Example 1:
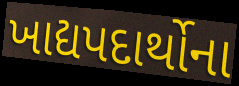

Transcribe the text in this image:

ખાદ્યપદાર્થોના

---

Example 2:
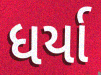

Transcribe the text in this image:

ધર્યા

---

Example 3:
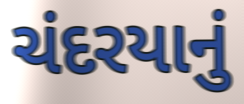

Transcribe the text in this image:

ચંદરયાનું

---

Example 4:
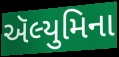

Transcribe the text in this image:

ઍલ્યુમિના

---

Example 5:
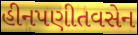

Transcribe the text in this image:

હીનપણીતવસેન